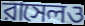
রাসেলও